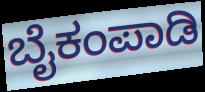
ಬೈಕಂಪಾಡಿ